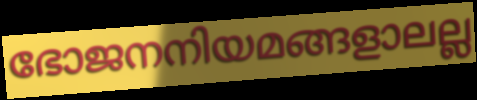
ഭോജനനിയമങ്ങളാലല്ല